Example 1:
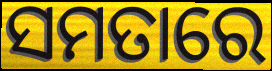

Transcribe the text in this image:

ସମତାରେ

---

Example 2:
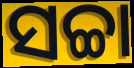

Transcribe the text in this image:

ସଚ୍ଚା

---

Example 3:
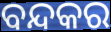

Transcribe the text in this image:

ବନ୍ଦକର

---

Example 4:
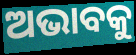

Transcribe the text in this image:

ଅଭାବକୁ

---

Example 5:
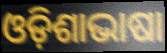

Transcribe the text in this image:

ଓଡ଼ିଶାଭାଷା